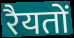
रैयतों